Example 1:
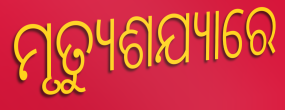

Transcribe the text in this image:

ମୃତ୍ୟୁଶଯ୍ୟାରେ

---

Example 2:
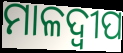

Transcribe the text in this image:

ମାଳଦ୍ଵୀପ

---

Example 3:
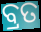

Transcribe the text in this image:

ବ୍ରତ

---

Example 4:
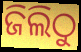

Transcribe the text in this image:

ଜିଲିଠୁ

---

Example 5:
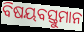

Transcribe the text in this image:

ବିଷୟବସ୍ତୁମାନ